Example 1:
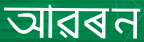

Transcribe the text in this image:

আৱৰন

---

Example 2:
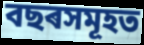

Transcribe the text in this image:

বছৰসমূহত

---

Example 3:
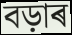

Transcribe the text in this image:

বড়াৰ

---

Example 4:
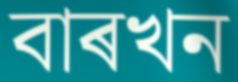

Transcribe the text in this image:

বাৰখন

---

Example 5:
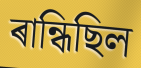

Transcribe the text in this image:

ৰান্ধিছিল